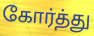
கோர்த்து